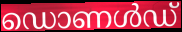
ഡൊണൾഡ്